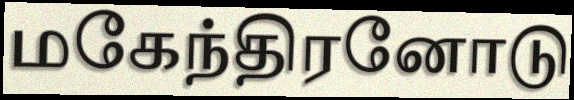
மகேந்திரனோடு